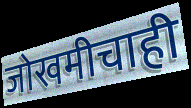
जोखमीचाही